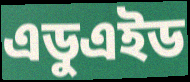
এডুএইড